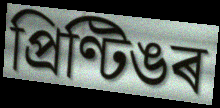
প্ৰিণ্টিঙৰ